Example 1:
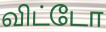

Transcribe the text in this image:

விட்டோ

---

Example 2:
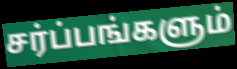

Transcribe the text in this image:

சர்ப்பங்களும்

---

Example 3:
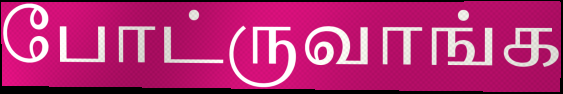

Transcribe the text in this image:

போட்ருவாங்க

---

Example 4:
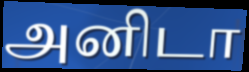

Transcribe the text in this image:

அனிடா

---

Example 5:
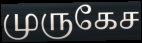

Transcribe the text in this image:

முருகேச